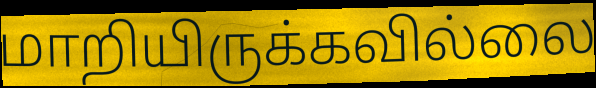
மாறியிருக்கவில்லை